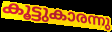
കൂട്ടുകാരന്നു